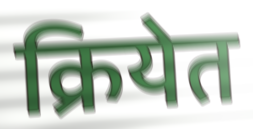
क्रियेत